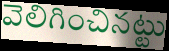
వెలిగించినట్టు